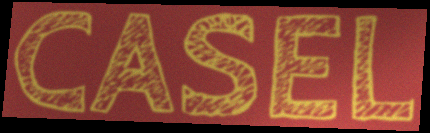
CASEL